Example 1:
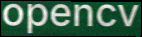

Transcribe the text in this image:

opencv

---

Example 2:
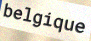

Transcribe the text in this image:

belgique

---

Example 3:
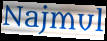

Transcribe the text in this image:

Najmul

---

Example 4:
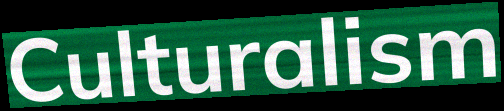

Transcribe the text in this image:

Culturalism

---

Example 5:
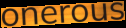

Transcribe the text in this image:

onerous